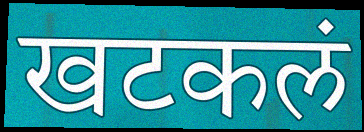
खटकलं